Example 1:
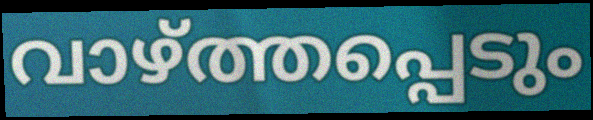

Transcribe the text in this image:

വാഴ്ത്തപ്പെടും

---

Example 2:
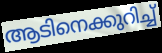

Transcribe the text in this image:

ആടിനെക്കുറിച്ച്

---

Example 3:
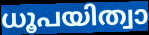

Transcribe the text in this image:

ധൂപയിത്വാ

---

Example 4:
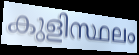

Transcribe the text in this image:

കുളിസ്ഥലം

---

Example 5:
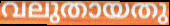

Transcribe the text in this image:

വലുതായതു